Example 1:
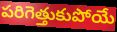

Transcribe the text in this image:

పరిగెత్తుకుపోయే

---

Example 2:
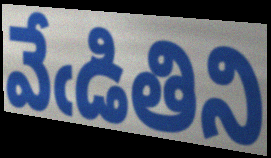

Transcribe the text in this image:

వేఁడితిని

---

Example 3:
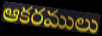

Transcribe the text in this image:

ఆకరములు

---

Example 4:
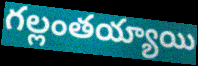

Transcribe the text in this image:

గల్లంతయ్యాయి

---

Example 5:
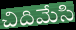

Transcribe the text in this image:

చిదిమేసి